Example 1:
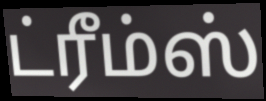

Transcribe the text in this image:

ட்ரீம்ஸ்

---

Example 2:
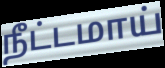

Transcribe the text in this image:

நீட்டமாய்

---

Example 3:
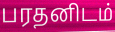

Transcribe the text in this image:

பரதனிடம்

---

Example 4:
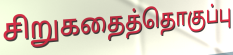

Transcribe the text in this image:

சிறுகதைத்தொகுப்பு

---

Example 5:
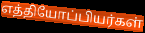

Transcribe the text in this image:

எத்தியோப்பியர்கள்